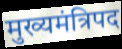
मुख्यमंत्रिपद